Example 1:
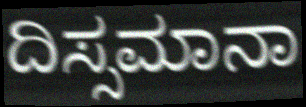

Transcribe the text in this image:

ದಿಸ್ಸಮಾನಾ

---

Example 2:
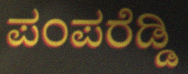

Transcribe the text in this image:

ಪಂಪರೆಡ್ಡಿ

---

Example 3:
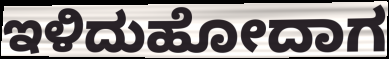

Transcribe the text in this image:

ಇಳಿದುಹೋದಾಗ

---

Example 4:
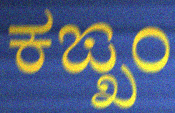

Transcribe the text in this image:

ಕಙ್ಖಂ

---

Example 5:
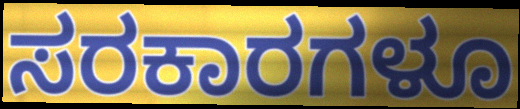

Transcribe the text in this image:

ಸರಕಾರಗಳೂ